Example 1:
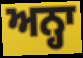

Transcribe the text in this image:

ਅਨ੍ਹਾ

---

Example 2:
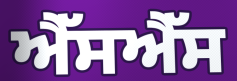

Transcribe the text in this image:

ਐੱਸਐੱਸ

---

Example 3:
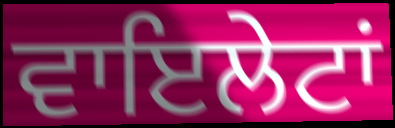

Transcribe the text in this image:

ਵਾਇਲੇਟਾਂ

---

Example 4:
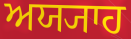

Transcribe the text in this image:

ਅਯ੍ਯਾਹ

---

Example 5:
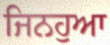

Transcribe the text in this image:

ਜਿਨਹੁਆ